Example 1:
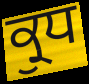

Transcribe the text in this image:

ਕ੍ਰੁਧ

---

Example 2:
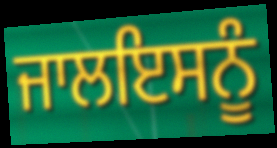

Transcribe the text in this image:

ਜਾਲਇਸਨੂੰ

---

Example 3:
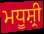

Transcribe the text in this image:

ਮਧੂਸ਼੍ਰੀ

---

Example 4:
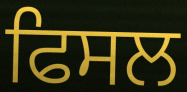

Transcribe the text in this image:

ਫਿਸਲ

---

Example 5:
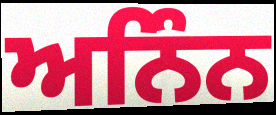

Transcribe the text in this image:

ਅਨਿੰਨ